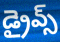
డ్రైవ్స్